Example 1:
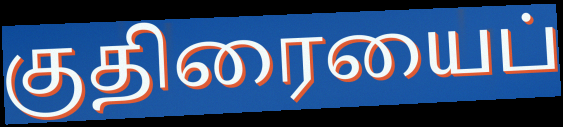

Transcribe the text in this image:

குதிரையைப்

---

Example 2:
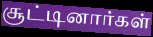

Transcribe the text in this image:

சூட்டினார்கள்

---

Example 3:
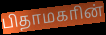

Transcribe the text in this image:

பிதாமகரின்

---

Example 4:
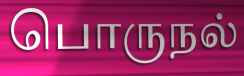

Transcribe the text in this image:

பொருநல்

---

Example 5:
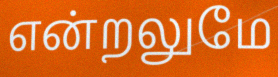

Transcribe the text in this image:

என்றலுமே